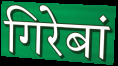
गिरेबां